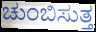
ಚುಂಬಿಸುತ್ತ